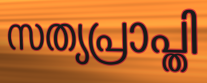
സത്യപ്രാപ്തി